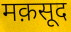
मक़सूद